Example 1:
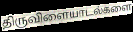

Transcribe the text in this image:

திருவிளையாடல்களை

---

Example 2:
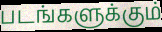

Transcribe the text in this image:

படங்களுக்கும்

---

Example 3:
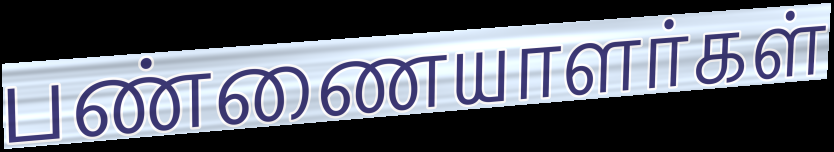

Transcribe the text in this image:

பண்ணையாளர்கள்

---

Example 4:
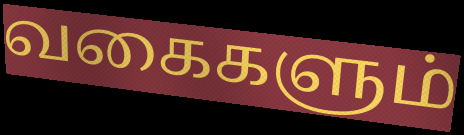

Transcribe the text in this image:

வகைகளும்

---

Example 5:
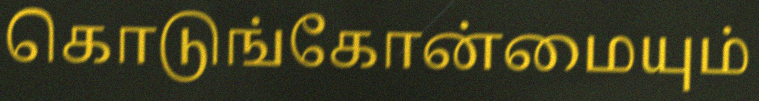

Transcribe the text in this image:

கொடுங்கோன்மையும்